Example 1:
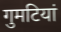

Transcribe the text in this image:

गुमटियां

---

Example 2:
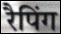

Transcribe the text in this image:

रैपिंग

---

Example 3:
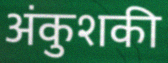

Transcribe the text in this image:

अंकुशकी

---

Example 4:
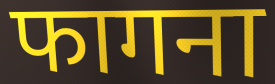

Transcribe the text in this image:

फागना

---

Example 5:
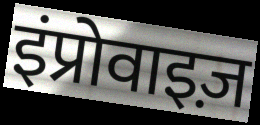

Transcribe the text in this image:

इंप्रोवाइज़